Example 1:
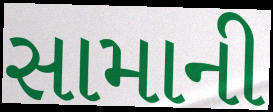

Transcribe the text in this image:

સામાની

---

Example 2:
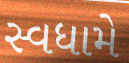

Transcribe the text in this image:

સ્વધામે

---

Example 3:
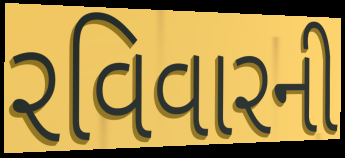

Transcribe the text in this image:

રવિવારની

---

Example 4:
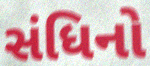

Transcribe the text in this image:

સંધિનો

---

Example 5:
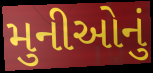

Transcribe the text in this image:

મુનીઓનું